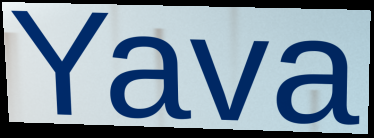
Yava